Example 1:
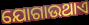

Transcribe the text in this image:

ଯୋଗାଉଥାଏ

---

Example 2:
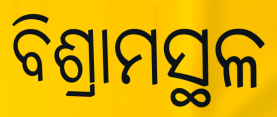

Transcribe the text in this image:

ବିଶ୍ରାମସ୍ଥଳ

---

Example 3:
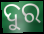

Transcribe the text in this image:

ଦୁର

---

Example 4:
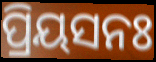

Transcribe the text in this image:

ପ୍ରିୟସନଃ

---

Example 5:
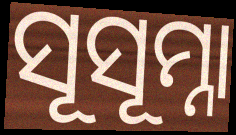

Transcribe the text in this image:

ସୂସୂମ୍ନା